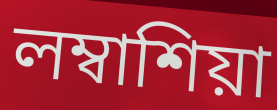
লম্বাশিয়া